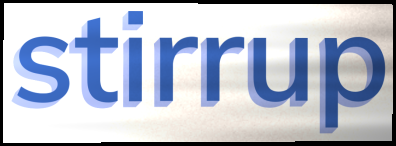
stirrup